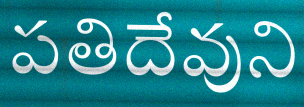
పతిదేవుని